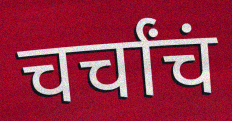
चर्चांचं